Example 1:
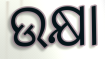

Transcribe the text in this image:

ଉକ୍ଷା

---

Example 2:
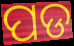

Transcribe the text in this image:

ପଡ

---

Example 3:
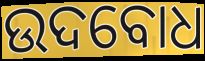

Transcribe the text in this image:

ଉଦବୋଧ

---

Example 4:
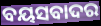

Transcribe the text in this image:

ବୟସବାଦର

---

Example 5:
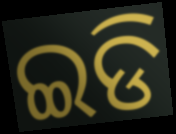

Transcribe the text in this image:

ଇଡି